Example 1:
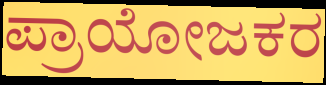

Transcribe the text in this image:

ಪ್ರಾಯೋಜಕರ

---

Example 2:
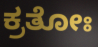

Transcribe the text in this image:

ಕ್ರತೋಃ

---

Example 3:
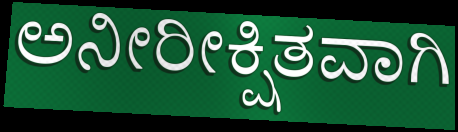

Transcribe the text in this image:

ಅನೀರೀಕ್ಷಿತವಾಗಿ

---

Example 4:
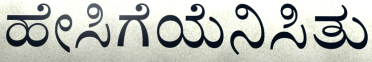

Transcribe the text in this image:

ಹೇಸಿಗೆಯೆನಿಸಿತು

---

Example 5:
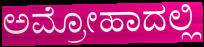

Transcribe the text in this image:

ಅಮ್ರೋಹಾದಲ್ಲಿ